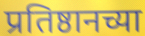
प्रतिष्ठानच्या